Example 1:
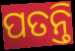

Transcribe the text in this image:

ପତନ୍ତି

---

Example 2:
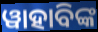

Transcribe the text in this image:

ୱାହାବିଙ୍କ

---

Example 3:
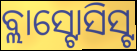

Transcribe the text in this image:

ବ୍ଲାସ୍ଟୋସିସ୍ଟ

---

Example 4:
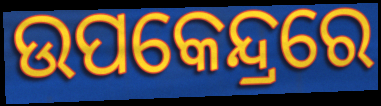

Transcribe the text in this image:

ଉପକେନ୍ଦ୍ରରେ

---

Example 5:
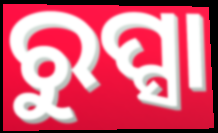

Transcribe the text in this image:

ରୁପ୍ସା